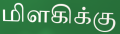
மிளகிக்கு